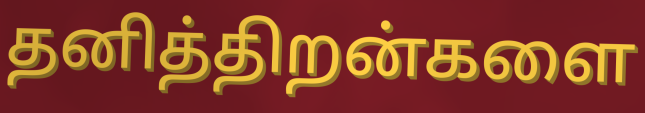
தனித்திறன்களை